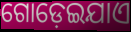
ଗୋଡ଼େଇଯାଏ